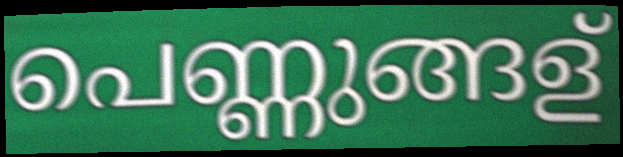
പെണ്ണുങ്ങള്